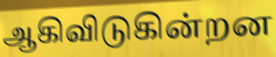
ஆகிவிடுகின்றன